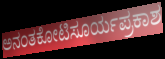
ಅನಂತಕೋಟಿಸೂರ್ಯಪ್ರಕಾಶ